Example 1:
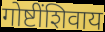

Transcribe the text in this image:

गोष्टींशिवाय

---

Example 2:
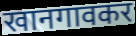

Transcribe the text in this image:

खानगावकर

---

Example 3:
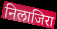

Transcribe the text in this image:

निलाजिरा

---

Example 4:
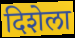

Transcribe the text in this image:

दिशेला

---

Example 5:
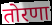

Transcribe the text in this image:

तोरणा